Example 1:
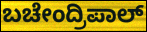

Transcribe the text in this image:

ಬಚೇಂದ್ರಿಪಾಲ್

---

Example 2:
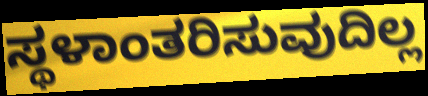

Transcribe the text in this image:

ಸ್ಥಳಾಂತರಿಸುವುದಿಲ್ಲ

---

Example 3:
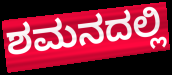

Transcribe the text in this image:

ಶಮನದಲ್ಲಿ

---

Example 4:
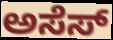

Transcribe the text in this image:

ಅಸೆಸ್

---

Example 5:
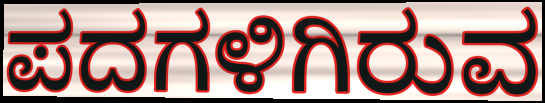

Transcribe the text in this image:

ಪದಗಳಿಗಿರುವ